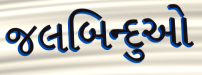
જલબિન્દુઓ